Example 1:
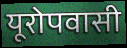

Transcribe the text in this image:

यूरोपवासी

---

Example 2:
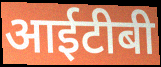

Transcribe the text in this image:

आईटीबी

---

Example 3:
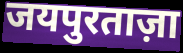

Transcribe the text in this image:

जयपुरताज़ा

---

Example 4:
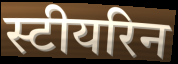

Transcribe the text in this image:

स्टीयरिन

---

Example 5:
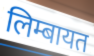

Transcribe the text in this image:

लिम्बायत